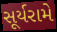
સૂર્યરામે